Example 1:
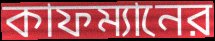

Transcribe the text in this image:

কাফম্যানের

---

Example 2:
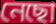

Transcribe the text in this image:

নেছো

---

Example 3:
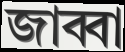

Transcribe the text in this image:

জাব্বা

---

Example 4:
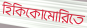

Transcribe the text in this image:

হিকিকোমোরিতে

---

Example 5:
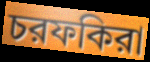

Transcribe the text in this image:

চরফকিরা